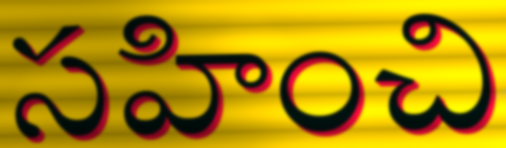
సహించి